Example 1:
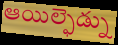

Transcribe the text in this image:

ఆయిల్ఫెడ్ను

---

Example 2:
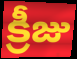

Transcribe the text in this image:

క్రీజు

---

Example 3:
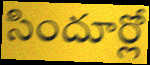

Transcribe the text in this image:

సిందూర్లో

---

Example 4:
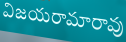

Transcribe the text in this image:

విజయరామారావు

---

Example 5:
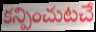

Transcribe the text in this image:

కన్పించుటచే